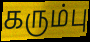
கரும்பு